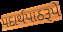
પદાર્થપાઠરૂપે